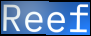
Reef